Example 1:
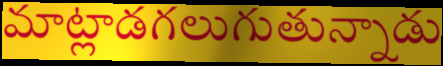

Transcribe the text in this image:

మాట్లాడగలుగుతున్నాడు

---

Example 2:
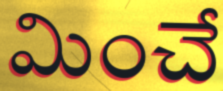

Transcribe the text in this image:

మించే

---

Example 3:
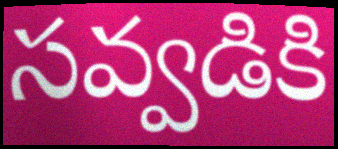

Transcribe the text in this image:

సవ్వడికి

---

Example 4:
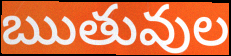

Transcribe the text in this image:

ఋతువుల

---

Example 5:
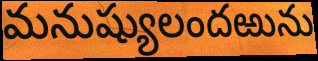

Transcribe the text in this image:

మనుష్యులందఱును